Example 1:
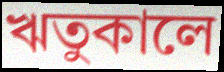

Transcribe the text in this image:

ঋতুকালে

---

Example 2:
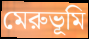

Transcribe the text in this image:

মেরুভূমি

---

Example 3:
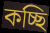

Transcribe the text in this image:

কচ্ছি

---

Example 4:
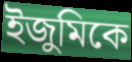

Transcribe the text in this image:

ইজুমিকে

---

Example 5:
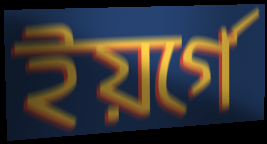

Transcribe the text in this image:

ইয়র্গে